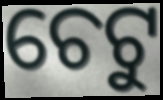
ଚେଟୁ